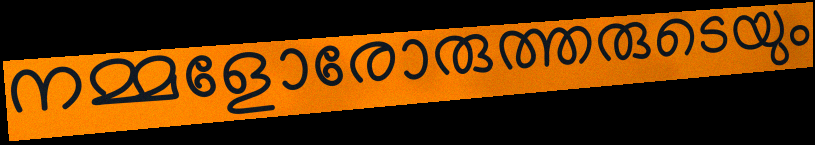
നമ്മളോരോരുത്തരുടെയും